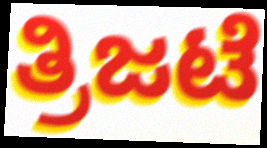
ತ್ರಿಜಟೆ